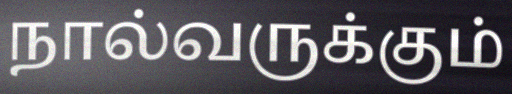
நால்வருக்கும்